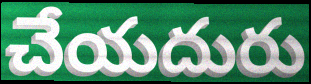
చేయదురు